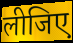
लीजिए